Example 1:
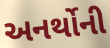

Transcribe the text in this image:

અનર્થોની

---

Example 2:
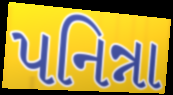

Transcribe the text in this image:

પનિન્ના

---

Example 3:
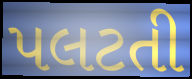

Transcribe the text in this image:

પલટતી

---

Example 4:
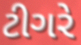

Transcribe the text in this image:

ટીગરે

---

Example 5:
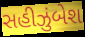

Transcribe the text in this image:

સહીઝુંબેશ